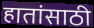
हातांसाठी